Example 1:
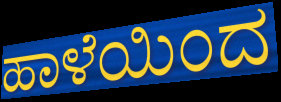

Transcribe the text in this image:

ಹಾಳೆಯಿಂದ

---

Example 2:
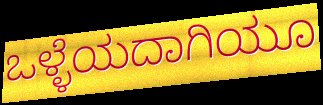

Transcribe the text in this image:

ಒಳ್ಳೆಯದಾಗಿಯೂ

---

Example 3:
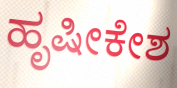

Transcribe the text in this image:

ಹೃಷೀಕೇಶ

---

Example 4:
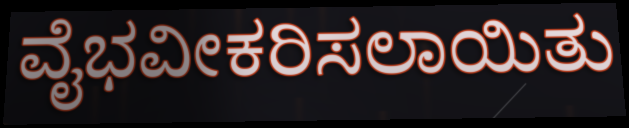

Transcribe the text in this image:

ವೈಭವೀಕರಿಸಲಾಯಿತು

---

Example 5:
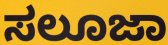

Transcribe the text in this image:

ಸಲೂಜಾ